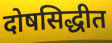
दोषसिद्धीत